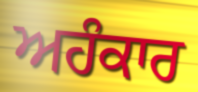
ਅਹੰਕਾਰ